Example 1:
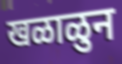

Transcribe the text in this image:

खळाळुन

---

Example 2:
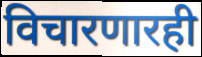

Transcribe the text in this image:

विचारणारही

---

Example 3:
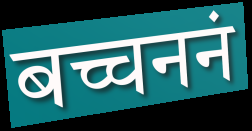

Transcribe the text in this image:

बच्चननं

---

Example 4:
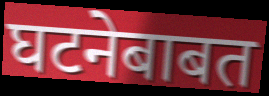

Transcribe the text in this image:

घटनेबाबत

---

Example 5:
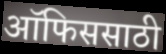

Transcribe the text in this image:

ऑफिससाठी